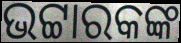
ଭଟ୍ଟାରକଙ୍କ